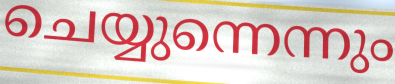
ചെയ്യുന്നെന്നും